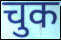
चुक